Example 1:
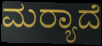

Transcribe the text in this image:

ಮರ‍್ಯಾದೆ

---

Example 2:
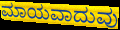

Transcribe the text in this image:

ಮಾಯವಾದುವು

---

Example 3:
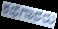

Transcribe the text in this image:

ಕಥೆಗಾರರು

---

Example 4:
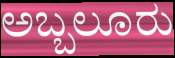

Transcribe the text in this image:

ಅಬ್ಬಲೂರು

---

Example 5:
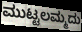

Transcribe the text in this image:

ಮುಟ್ಟಲಮ್ಮದು